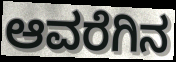
ಆವರೆಗಿನ